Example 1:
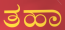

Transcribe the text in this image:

ತಹಾ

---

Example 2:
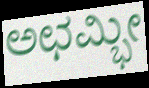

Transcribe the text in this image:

ಅಛಮ್ಭೀ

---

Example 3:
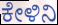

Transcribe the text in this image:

ಕೇಳಿನಿ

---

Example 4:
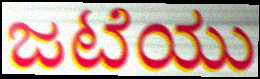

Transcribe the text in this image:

ಜಟೆಯು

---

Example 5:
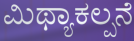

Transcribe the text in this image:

ಮಿಥ್ಯಾಕಲ್ಪನೆ